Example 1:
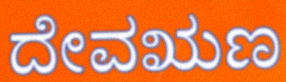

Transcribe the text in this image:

ದೇವಋಣ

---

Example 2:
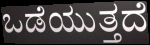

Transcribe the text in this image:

ಒಡೆಯುತ್ತದೆ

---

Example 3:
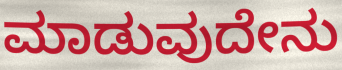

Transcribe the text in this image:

ಮಾಡುವುದೇನು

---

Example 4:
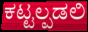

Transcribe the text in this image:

ಕಟ್ಟಲ್ಪಡಲಿ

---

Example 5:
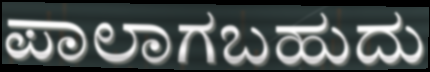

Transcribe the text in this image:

ಪಾಲಾಗಬಹುದು